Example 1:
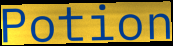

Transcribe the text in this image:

Potion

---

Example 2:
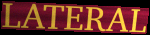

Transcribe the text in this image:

LATERAL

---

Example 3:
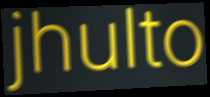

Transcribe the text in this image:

jhulto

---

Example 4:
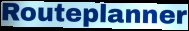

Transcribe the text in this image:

Routeplanner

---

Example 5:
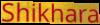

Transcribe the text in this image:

Shikhara